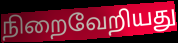
நிறைவேறியது